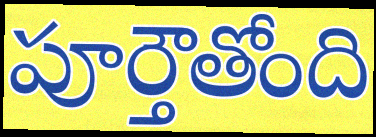
పూర్తౌతోంది